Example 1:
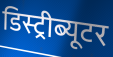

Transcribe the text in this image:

डिस्ट्रीब्यूटर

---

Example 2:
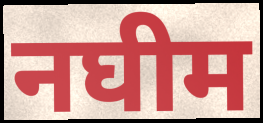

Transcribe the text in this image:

नघीम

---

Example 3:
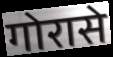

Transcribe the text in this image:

गोरासे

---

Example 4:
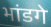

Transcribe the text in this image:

भांडगे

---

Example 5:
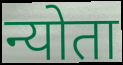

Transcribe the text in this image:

न्योता